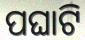
ପଘାଟି